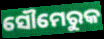
ସୌମେରୁକ